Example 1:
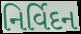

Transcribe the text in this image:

નિર્વિદન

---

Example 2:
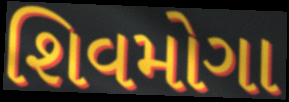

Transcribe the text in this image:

શિવમોગા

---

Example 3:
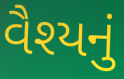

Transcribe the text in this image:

વૈશ્યનું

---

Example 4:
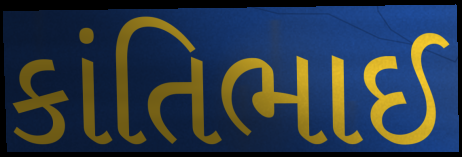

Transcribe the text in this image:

કાંતિભાઈ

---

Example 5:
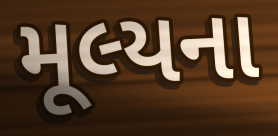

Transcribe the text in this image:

મૂલ્યના